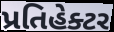
પ્રતિહેક્ટર